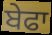
ਬੇਫਾ